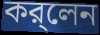
কর্‌লেন